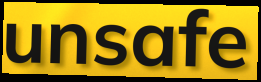
unsafe